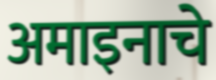
अमाइनाचे